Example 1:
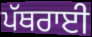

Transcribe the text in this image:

ਪੱਥਰਾਈ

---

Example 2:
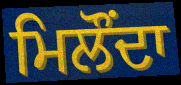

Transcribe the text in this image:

ਮਿਲੌਂਦਾ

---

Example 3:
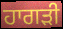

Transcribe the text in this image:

ਹਾਗੜੀ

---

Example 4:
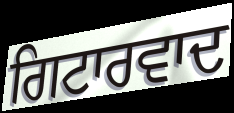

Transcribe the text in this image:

ਗਿਟਾਰਵਾਦ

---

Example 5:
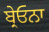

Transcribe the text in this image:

ਬ੍ਰੇਓਨਾ